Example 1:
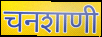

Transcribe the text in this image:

चनशाणी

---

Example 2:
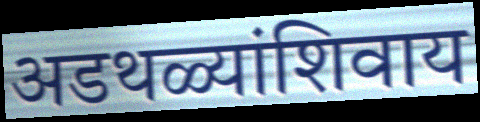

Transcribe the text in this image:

अडथळ्यांशिवाय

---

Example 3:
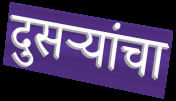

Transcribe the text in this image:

दुसऱ्यांचा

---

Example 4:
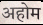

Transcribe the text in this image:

अहोम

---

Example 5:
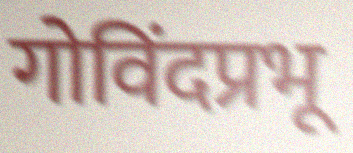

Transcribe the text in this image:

गोविंदप्रभू